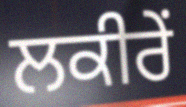
ਲਕੀਰੇਂ